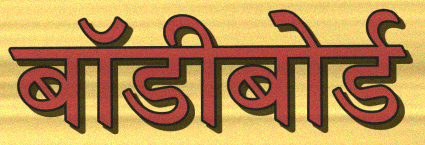
बॉडीबोर्ड